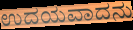
ಉದಯವಾದನು